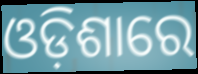
ଓଡ଼ିଶାରେ